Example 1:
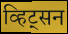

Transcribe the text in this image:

व्हिट्सन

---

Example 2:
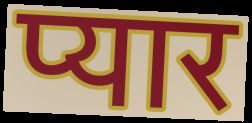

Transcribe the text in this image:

प्यार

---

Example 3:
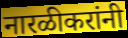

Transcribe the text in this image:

नारळीकरांनी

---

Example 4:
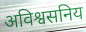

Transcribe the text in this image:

अविश्वसनिय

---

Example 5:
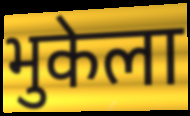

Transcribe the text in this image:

भुकेला